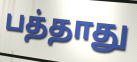
பத்தாது